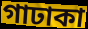
গাঢাকা